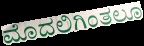
ಮೊದಲಿಗಿಂತಲೂ